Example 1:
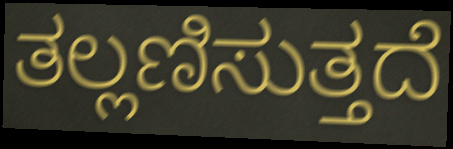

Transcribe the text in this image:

ತಲ್ಲಣಿಸುತ್ತದೆ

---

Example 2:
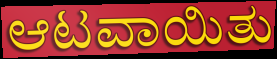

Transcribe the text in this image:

ಆಟವಾಯಿತು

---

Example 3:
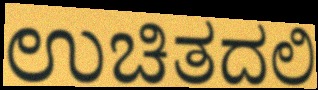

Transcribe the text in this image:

ಉಚಿತದಲಿ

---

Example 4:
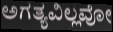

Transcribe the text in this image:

ಅಗತ್ಯವಿಲ್ಲವೋ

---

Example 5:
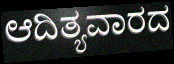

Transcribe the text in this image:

ಆದಿತ್ಯವಾರದ